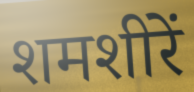
शमशीरें